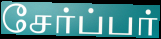
சேர்ப்பர்